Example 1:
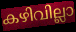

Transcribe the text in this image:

കഴിവില്ലാ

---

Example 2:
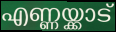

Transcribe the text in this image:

എണ്ണയ്ക്കാട്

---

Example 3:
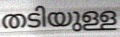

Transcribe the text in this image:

തടിയുള്ള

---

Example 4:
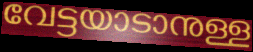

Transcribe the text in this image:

വേട്ടയാടാനുള്ള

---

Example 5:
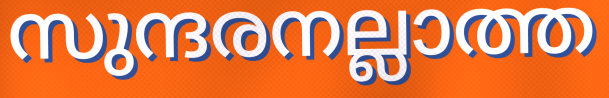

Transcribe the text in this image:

സുന്ദരനല്ലാത്ത